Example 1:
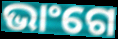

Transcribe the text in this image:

ଭାଂଗେ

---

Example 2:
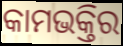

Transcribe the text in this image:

କାମଭକ୍ତିର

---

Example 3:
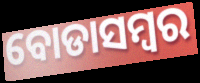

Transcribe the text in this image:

ବୋଡାସମ୍ବର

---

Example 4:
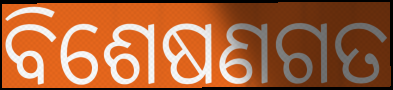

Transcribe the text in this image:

ବିଶେଷଣଗତ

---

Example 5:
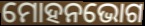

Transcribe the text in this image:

ମୋହନଭୋଗ